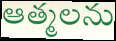
ఆత్మలను